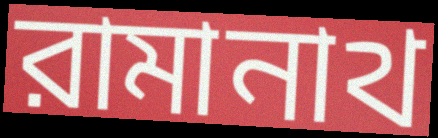
রামানাথ